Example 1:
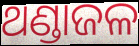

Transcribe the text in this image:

ଥଣ୍ଡାଜଳ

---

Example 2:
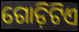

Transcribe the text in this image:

ଗୋଡ଼ିଟିଏ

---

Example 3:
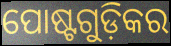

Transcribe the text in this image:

ପୋଷ୍ଟଗୁଡ଼ିକର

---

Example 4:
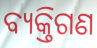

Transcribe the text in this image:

ବ୍ଯକ୍ତିଗଣ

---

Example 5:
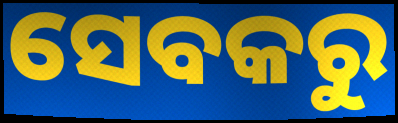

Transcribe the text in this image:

ସେବକରୁ